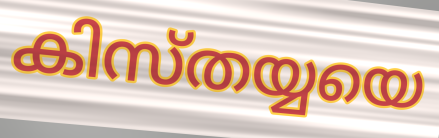
കിസ്തയ്യയെ